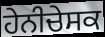
ਹੇਨੀਚੇਸਕ